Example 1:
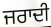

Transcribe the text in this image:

ਜਰਾਦੀ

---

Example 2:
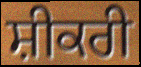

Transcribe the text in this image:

ਸ਼ੀਕਰੀ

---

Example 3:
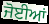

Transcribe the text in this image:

ਜੋਈਆਂ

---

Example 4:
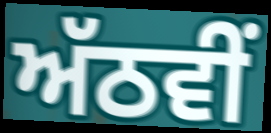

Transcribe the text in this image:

ਅੱਠਵੀਂ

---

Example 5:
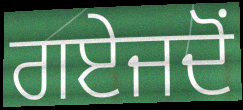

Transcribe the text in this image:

ਗਏਜਦੋਂ